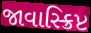
જાવાસ્ક્રિપ્ટ